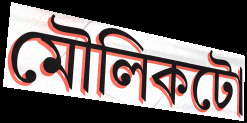
মৌলিকটো